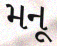
મનૂ